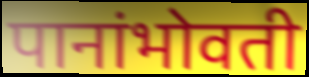
पानांभोवती